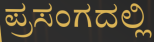
ಪ್ರಸಂಗದಲ್ಲಿ